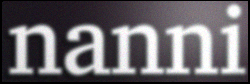
nanni